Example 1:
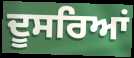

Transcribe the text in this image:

ਦੂਸਰਿਆਂ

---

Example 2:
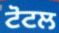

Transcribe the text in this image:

ਟੋਟਲ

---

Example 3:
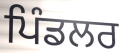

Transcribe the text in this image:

ਪਿੰਡਲਰ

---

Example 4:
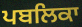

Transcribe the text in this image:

ਪਬਲਿਕਾ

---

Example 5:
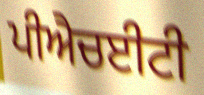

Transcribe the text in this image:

ਪੀਐਚਈਟੀ